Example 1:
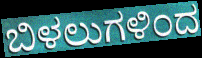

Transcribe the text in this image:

ಬಿಳಲುಗಳಿಂದ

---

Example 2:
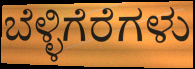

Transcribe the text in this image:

ಬೆಳ್ಳಿಗೆರೆಗಳು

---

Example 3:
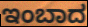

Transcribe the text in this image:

ಇಂಬಾದ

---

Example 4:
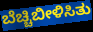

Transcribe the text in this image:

ಬೆಚ್ಚಿಬೀಳಿಸಿತು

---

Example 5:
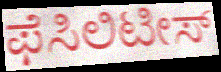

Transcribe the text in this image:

ಫೆಸಿಲಿಟೀಸ್